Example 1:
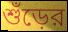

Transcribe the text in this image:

শুঁড়ের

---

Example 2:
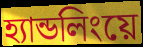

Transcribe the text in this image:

হ্যান্ডলিংয়ে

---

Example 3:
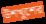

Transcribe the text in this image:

উশখুশের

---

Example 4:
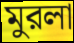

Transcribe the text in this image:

মুরলা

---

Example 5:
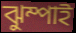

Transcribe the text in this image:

ঝুম্পাই